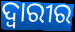
ଦ୍ୱାରୀର